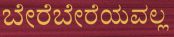
ಬೇರೆಬೇರೆಯವಲ್ಲ